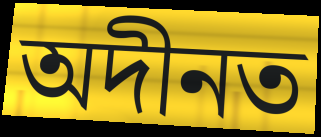
অদীনত